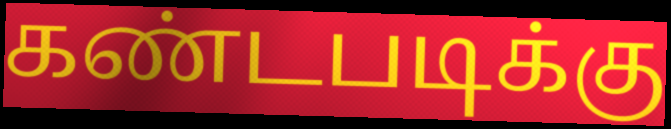
கண்டபடிக்கு